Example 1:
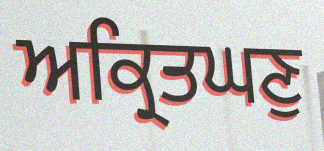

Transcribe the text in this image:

ਅਕ੍ਰਿਤਘਣੁ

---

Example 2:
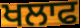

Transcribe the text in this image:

ਖਲਾਫ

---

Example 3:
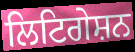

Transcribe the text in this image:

ਲਿਟਿਗੇਸ਼ਨ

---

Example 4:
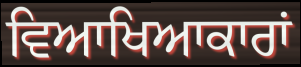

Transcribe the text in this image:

ਵਿਆਖਿਆਕਾਰਾਂ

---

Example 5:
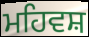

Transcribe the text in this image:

ਮਹਿਵਸ਼